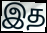
இத